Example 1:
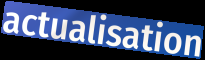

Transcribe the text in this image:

actualisation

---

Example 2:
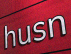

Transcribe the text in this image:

husn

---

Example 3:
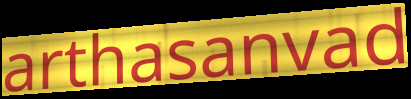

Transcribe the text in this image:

arthasanvad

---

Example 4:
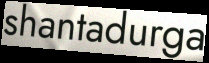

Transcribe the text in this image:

shantadurga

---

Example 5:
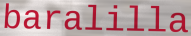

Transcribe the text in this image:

baralilla